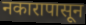
नकारापासून